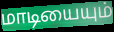
மாடியையும்